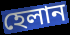
হেলান